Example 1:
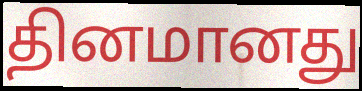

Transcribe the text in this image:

தினமானது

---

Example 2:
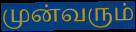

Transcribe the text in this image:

முன்வரும்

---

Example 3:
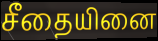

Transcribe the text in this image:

சீதையினை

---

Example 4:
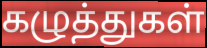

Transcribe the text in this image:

கழுத்துகள்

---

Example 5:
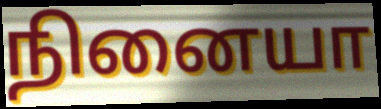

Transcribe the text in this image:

நினையா